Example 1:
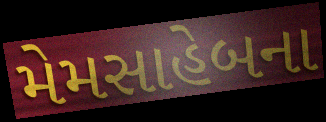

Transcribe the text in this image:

મેમસાહેબના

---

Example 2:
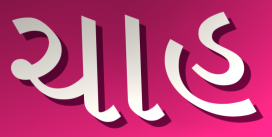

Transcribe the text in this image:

ચાહ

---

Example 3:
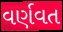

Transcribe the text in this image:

વર્ણવત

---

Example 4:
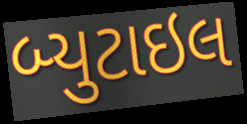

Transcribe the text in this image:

બ્યુટાઇલ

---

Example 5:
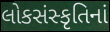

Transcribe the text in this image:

લોકસંસ્કૃતિનાં